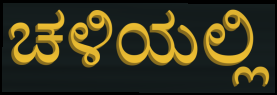
ಚಳಿಯಲ್ಲಿ